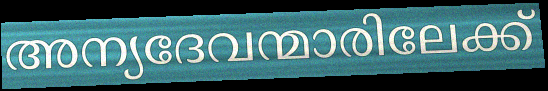
അന്യദേവന്മാരിലേക്ക്